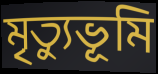
মৃত্যুভূমি